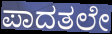
ಪಾದತಲೇ